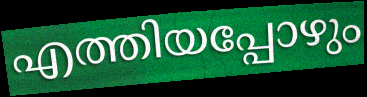
എത്തിയപ്പോഴും